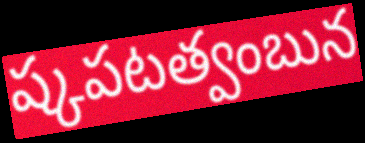
ష్కపటత్వంబున